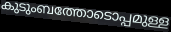
കുടുംബത്തോടൊപ്പമുള്ള